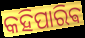
କହିପାରିଵ